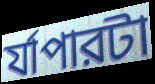
র্যাপারটা